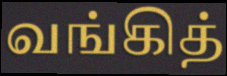
வங்கித்